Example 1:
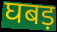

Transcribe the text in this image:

घबड़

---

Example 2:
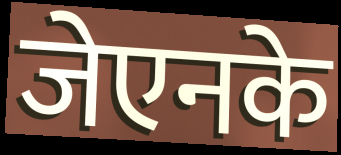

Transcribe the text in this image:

जेएनके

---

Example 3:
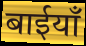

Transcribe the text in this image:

बाईयाँ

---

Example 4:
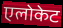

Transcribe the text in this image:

एलोकेट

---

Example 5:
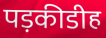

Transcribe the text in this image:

पड़कीडीह